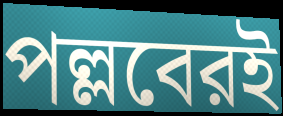
পল্লবেরই